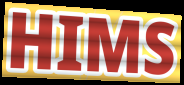
HIMS